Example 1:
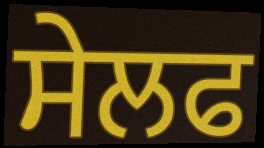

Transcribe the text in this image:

ਸੇਲਫ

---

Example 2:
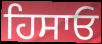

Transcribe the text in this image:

ਹਿਸਾਓ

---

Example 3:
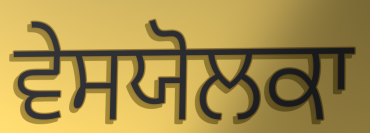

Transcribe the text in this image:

ਵੇਸਯੋਲਕਾ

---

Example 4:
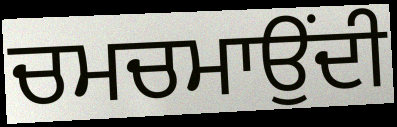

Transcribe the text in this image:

ਚਮਚਮਾਉਂਦੀ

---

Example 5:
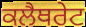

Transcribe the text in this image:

ਕਲੈਥਰੇਟ